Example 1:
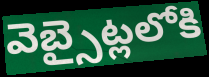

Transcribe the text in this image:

వెబ్సైట్లలోకి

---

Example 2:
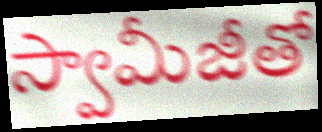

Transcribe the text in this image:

స్వామీజీతో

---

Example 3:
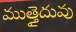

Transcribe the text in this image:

ముత్తైదువు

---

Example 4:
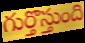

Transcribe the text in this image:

గుర్తొస్తుంది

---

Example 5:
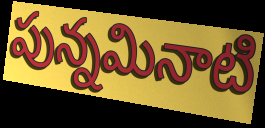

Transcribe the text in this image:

పున్నమినాటి